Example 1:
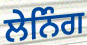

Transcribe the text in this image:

ਲੇਨਿੰਗ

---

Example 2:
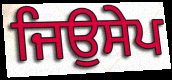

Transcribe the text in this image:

ਜਿਉਸੇਪ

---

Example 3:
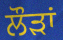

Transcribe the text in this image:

ਲੌੜਾਂ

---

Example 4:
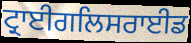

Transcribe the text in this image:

ਟ੍ਰਾਈਗਲਿਸਰਾਈਡ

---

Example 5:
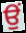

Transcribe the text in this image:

ਉਂ